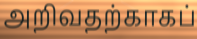
அறிவதற்காகப்